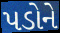
પડોને